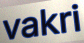
vakri